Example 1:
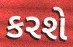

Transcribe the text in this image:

કરશે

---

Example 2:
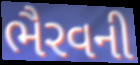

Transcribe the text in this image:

ભૈરવની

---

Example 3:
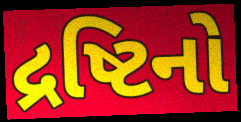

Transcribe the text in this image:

દ્રષ્ટિનો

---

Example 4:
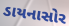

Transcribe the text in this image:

ડાયનાસોર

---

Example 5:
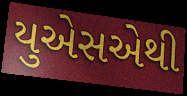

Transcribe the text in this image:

યુએસએથી